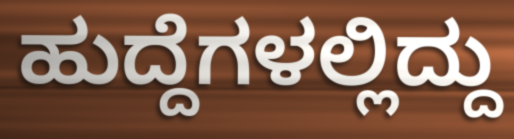
ಹುದ್ದೆಗಳಲ್ಲಿದ್ದು